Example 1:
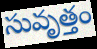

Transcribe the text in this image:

సువృత్తం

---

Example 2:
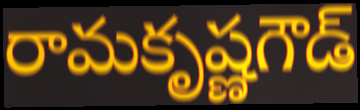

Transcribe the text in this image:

రామకృష్ణగౌడ్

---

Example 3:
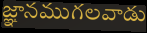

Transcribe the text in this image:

జ్ఞానముగలవాడు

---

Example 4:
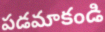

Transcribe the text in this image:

పడమాకండి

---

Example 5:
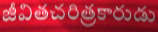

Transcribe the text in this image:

జీవితచరిత్రకారుడు